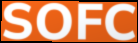
SOFC